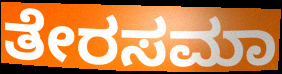
ತೇರಸಮಾ